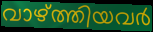
വാഴ്ത്തിയവർ